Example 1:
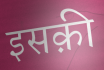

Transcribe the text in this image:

इसक़ी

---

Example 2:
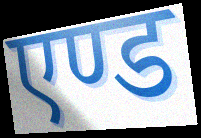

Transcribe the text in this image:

एण्ड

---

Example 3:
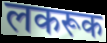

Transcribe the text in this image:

लकरूक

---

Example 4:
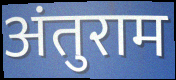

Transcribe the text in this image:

अंतुराम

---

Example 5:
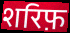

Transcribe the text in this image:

शरिफ़